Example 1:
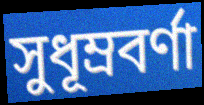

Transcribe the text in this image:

সুধূম্রবর্ণা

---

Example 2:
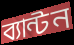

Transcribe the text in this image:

ব্যান্টন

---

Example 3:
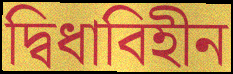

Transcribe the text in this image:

দ্বিধাবিহীন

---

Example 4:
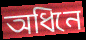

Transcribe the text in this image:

অধিনে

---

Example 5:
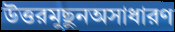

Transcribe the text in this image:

উত্তরমুছুনঅসাধারণ